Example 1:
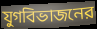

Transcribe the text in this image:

যুগবিভাজনের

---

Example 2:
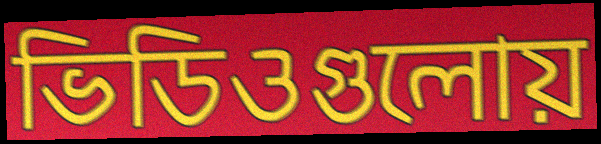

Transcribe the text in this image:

ভিডিওগুলোয়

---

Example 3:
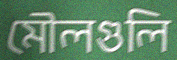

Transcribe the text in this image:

মৌলগুলি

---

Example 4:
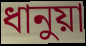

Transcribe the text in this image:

ধানুয়া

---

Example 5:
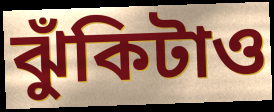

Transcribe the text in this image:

ঝুঁকিটাও